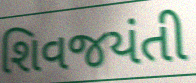
શિવજયંતી